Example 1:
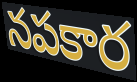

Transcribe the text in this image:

నపకార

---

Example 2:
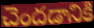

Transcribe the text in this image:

చెందడానికి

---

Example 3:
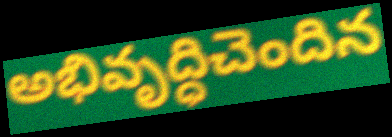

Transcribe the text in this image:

అభివృద్ధిచెందిన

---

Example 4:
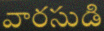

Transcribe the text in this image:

వారసుడి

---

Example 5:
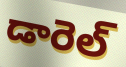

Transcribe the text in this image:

డారెల్